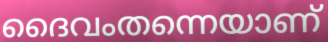
ദൈവംതന്നെയാണ്